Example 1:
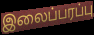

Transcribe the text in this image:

இலைப்பரப்பு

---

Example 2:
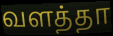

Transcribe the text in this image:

வளத்தா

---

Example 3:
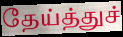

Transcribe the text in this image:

தேய்த்துச்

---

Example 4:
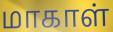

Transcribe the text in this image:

மாகாள்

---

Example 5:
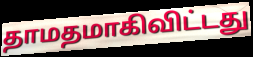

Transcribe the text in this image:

தாமதமாகிவிட்டது